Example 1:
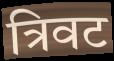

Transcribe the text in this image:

त्रिवट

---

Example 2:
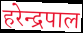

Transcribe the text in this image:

हरेन्द्रपाल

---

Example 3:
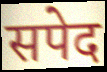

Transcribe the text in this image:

सपेद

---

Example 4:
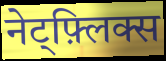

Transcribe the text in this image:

नेट्फ़्लिक्स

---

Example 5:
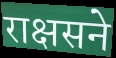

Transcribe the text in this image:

राक्षसने